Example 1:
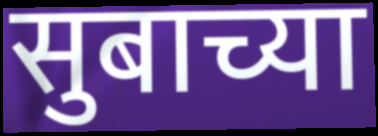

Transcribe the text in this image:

सुबाच्या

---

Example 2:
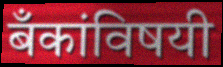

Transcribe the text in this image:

बँकांविषयी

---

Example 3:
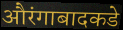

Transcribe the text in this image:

औरंगाबादकडे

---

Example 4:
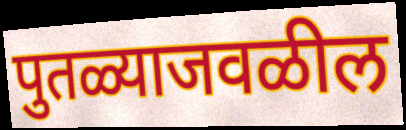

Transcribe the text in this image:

पुतळ्याजवळील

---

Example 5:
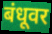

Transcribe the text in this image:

बंधूवर